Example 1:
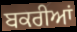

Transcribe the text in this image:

ਬਕਰੀਆਂ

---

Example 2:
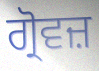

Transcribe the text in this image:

ਗ੍ਰੋਵਜ਼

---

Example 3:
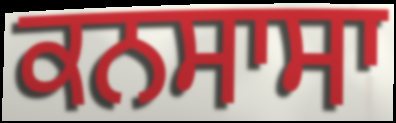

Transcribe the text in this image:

ਕਨਸਾਸਾ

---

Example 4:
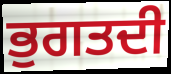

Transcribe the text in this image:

ਭੁਗਤਦੀ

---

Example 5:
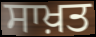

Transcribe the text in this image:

ਸਾਖ਼ਤ